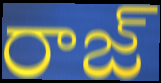
రాజ్